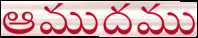
ఆముదము